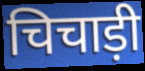
चिचाड़ी